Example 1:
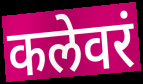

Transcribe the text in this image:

कलेवरं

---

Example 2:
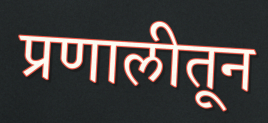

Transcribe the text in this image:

प्रणालीतून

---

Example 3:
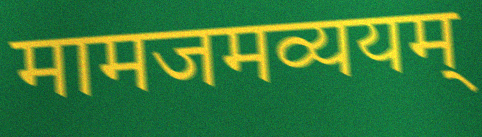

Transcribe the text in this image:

मामजमव्ययम्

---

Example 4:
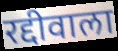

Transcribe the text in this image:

रद्दीवाला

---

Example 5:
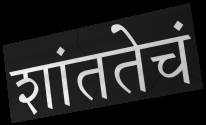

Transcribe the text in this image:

शांततेचं